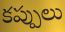
కప్పులు